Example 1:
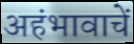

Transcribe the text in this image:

अहंभावाचें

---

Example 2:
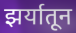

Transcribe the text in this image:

झर्यातून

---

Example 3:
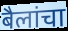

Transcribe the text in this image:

बैलांचा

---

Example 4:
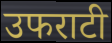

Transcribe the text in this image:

उफराटी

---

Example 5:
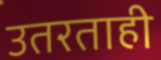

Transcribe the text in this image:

उतरताही